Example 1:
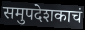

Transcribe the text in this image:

समुपदेशकाचं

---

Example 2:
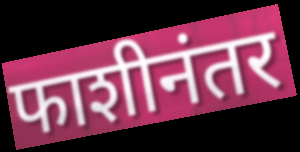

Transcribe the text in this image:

फाशीनंतर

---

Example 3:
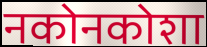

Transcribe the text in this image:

नकोनकोशा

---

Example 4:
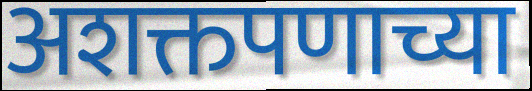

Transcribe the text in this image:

अशक्तपणाच्या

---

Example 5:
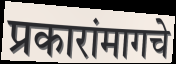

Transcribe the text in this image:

प्रकारांमागचे